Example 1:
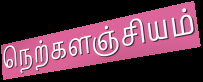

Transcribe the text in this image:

நெற்களஞ்சியம்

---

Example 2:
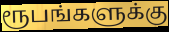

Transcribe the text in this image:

ரூபங்களுக்கு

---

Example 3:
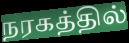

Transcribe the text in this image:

நரகத்தில்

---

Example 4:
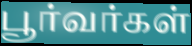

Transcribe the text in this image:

பூர்வர்கள்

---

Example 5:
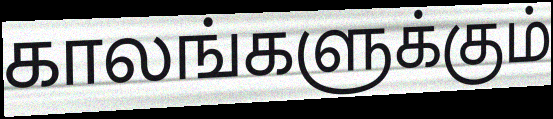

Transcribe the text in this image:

காலங்களுக்கும்